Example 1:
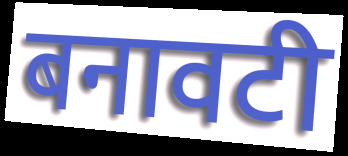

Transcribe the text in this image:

बनावटी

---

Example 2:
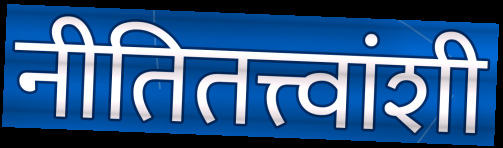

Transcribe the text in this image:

नीतितत्त्वांशी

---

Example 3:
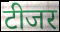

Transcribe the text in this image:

टीजर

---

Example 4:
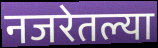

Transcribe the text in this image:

नजरेतल्या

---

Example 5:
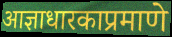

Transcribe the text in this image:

आज्ञाधारकाप्रमाणे